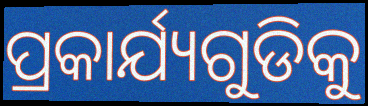
ପ୍ରକାର୍ଯ୍ୟଗୁଡିକୁ